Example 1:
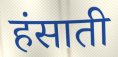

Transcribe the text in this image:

हंसाती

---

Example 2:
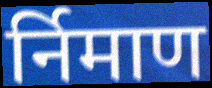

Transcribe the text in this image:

र्निमाण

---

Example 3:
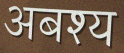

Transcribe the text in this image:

अबश्य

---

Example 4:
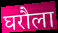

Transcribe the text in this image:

घरौला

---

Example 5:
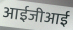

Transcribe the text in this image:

आईजीआई